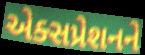
એક્સપ્રેશનને